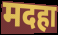
मदहा